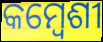
କମ୍ବେଶୀ